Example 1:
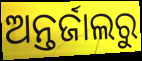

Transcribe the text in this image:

ଅନ୍ତର୍ଜାଲରୁ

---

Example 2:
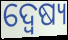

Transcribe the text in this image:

ଦ୍ୱେଷ୍ୟ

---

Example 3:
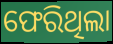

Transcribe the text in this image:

ଫେରିଥିଲା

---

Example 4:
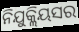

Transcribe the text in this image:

ନିଯୁକ୍ଲିୟସର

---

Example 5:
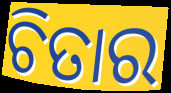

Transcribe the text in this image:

ଚିତାର